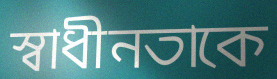
স্বাধীনতাকে